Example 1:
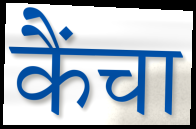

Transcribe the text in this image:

कैंचा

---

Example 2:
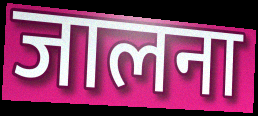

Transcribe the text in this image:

जालना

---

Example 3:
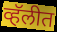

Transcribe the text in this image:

व्हॅलीत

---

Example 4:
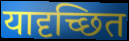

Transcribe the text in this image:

यादृच्छित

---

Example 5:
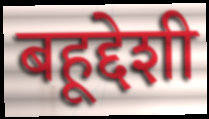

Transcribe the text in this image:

बहूद्देशी